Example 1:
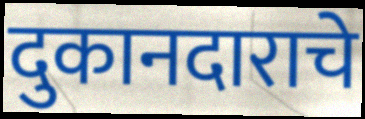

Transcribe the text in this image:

दुकानदाराचे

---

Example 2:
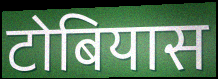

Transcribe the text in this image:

टोबियास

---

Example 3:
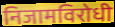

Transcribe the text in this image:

निजामविरोधी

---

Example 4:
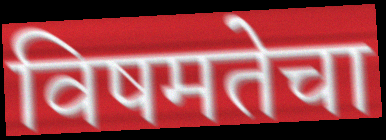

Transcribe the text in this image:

विषमतेचा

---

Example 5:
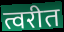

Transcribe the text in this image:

त्वरीत